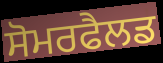
ਸੋਮਰਫੈਲਡ